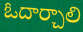
ఓదార్చాలి